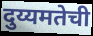
दुय्यमतेची